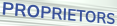
PROPRIETORS